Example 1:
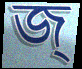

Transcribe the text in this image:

জ্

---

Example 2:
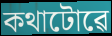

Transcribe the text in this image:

কথাটোৱে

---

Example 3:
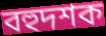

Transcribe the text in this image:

বহুদশক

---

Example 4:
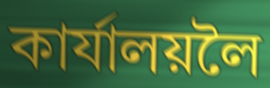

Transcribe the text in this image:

কাৰ্যালয়লৈ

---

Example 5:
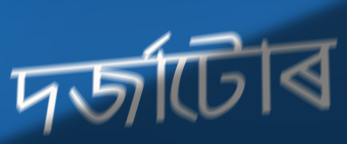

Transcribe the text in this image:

দৰ্জাটোৰ